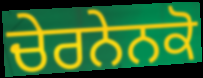
ਚੇਰਨੇਨਕੋ